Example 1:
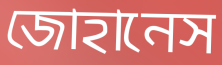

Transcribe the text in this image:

জোহানেস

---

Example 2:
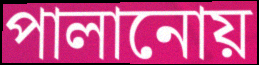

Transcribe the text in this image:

পালানোয়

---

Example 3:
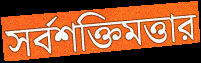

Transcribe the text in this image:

সর্বশক্তিমত্তার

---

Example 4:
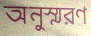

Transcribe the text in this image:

অনুস্মরণ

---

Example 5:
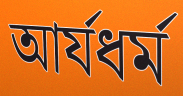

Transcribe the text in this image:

আর্যধর্ম